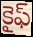
కైఫ్